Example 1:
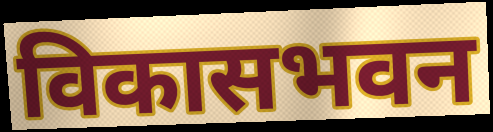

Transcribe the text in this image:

विकासभवन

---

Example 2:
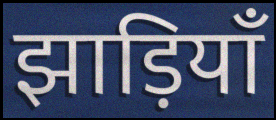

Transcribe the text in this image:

झाड़ियाँ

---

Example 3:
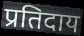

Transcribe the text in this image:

प्रतिदाय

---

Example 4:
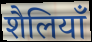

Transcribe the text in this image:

शैलियाँ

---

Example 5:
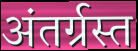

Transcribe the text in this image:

अंतर्ग्रस्त